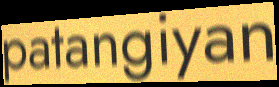
patangiyan